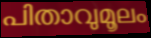
പിതാവുമൂലം